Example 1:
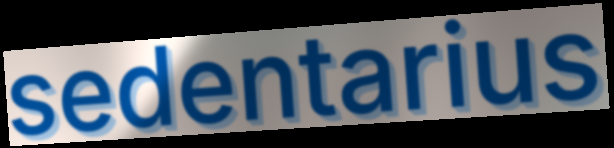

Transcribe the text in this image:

sedentarius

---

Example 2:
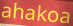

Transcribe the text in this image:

ahakoa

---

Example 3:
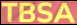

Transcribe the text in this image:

TBSA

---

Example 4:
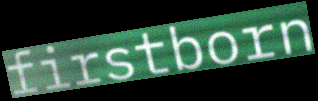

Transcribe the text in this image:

firstborn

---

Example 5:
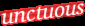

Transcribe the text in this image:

unctuous